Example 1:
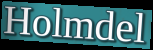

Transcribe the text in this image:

Holmdel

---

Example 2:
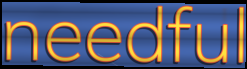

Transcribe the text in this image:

needful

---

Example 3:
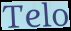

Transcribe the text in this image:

Telo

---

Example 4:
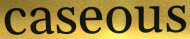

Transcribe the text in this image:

caseous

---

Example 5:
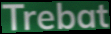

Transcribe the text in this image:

Trebat